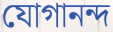
যোগানন্দ